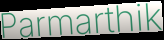
Parmarthik